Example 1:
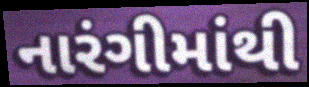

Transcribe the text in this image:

નારંગીમાંથી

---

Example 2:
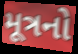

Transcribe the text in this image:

મૂત્રનો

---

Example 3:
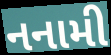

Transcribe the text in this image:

નનામી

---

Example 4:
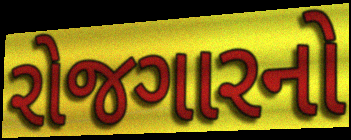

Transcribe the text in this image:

રોજગારનો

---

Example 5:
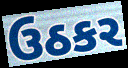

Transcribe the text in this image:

ઉઠકર